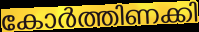
കോർത്തിണക്കി